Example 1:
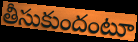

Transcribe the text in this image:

తీసుకుందంటూ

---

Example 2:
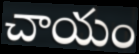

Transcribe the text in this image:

చాయం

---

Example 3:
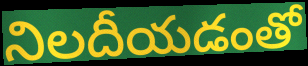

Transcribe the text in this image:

నిలదీయడంతో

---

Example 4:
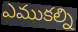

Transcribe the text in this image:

ఎముకల్ని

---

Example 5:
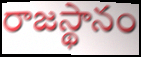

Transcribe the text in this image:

రాజస్థానం